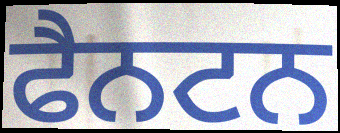
ਫੈਨਟਨ